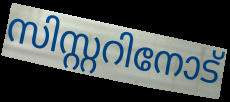
സിസ്റ്ററിനോട്